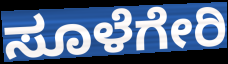
ಸೂಳೆಗೇರಿ